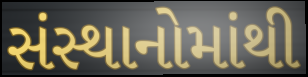
સંસ્થાનોમાંથી